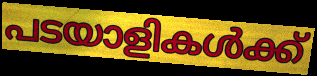
പടയാളികൾക്ക്